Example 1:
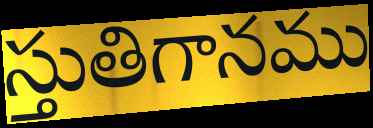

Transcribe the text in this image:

స్తుతిగానము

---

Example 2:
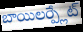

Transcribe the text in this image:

బాయిలర్ప్లేట్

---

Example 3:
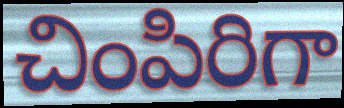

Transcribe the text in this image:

చింపిరిగా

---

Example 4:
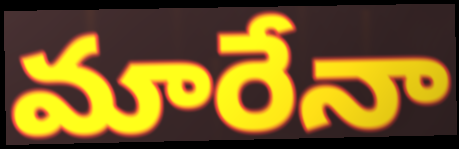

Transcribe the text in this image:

మారేనా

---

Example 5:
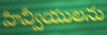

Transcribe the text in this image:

హివ్వీయులను